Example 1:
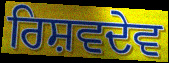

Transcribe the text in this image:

ਰਿਸ਼ਵਦੇਵ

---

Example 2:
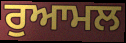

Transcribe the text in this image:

ਰੁਆਮਲ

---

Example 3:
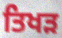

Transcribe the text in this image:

ਤਿਖੜ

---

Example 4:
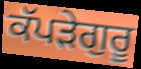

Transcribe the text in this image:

ਕੱਪੜੇਗੁਰੂ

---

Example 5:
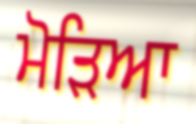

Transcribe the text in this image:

ਮੋੜਿਆ